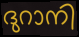
ദുറാനി